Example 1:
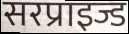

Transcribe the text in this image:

सरप्राइज्ड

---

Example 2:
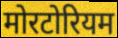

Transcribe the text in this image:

मोरटोरियम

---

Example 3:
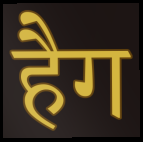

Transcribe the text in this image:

हैग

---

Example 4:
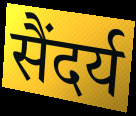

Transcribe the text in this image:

सैंदर्य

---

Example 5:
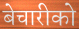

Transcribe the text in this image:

बेचारीको